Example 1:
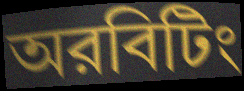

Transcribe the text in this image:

অরবিটিং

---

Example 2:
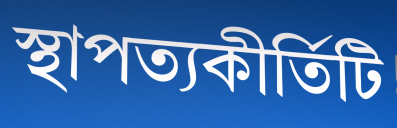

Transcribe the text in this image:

স্থাপত্যকীর্তিটি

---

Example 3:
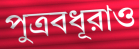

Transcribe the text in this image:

পুত্রবধূরাও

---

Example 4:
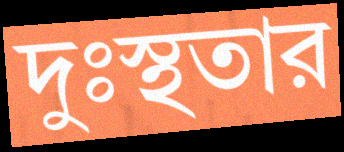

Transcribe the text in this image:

দুঃস্থতার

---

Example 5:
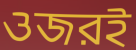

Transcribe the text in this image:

ওজরই